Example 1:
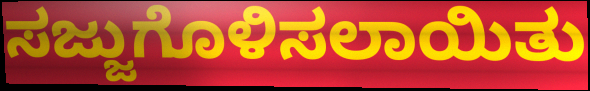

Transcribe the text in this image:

ಸಜ್ಜುಗೊಳಿಸಲಾಯಿತು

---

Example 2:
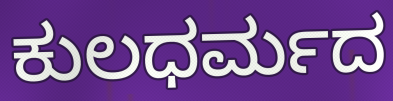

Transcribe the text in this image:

ಕುಲಧರ್ಮದ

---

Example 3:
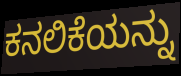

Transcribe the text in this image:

ಕನಲಿಕೆಯನ್ನು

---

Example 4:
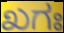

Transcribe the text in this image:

ಖಗಃ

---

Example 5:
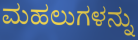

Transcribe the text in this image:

ಮಹಲುಗಳನ್ನು